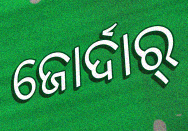
ଜୋର୍ଦାର୍